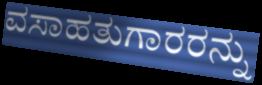
ವಸಾಹತುಗಾರರನ್ನು